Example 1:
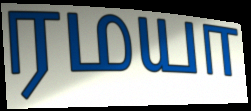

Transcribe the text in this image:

ரமயா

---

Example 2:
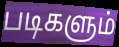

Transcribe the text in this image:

படிகளும்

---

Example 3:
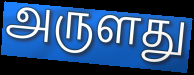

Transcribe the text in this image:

அருளது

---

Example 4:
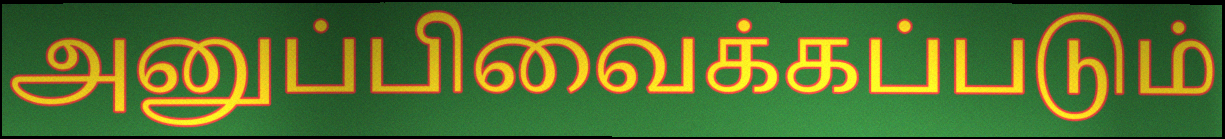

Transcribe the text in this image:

அனுப்பிவைக்கப்படும்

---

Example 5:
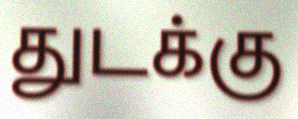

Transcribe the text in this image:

துடக்கு